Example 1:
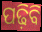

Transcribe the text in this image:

ପଢ଼ିବି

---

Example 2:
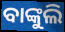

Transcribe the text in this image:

ବାଙ୍କୁଲି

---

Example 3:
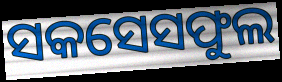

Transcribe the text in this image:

ସକସେସଫୁଲ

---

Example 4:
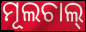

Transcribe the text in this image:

ମୂଲଚାଲ୍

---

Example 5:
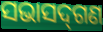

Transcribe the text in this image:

ସଭାସଦ୍‍ଗଣ